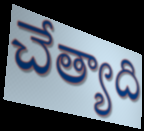
చేత్యాది